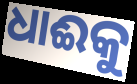
ଧାଈକୁ